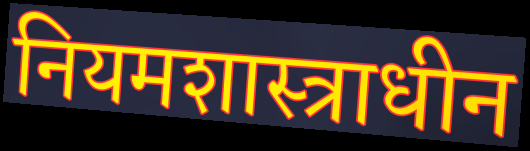
नियमशास्त्राधीन